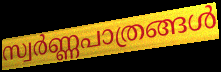
സ്വർണ്ണപാത്രങ്ങൾ